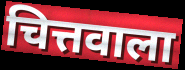
चित्तवाला